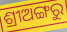
ଶ୍ରୀଅଙ୍ଗରୁ